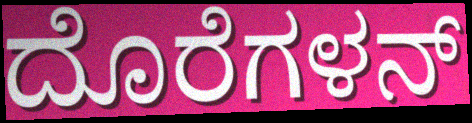
ದೊರೆಗಳನ್